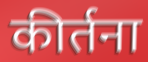
कीर्तना